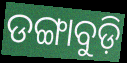
ଡଙ୍ଗାବୁଡ଼ି